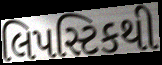
લિપસ્ટિકથી